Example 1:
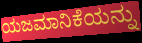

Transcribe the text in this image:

ಯಜಮಾನಿಕೆಯನ್ನು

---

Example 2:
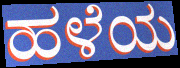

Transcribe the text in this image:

ಹಳೆಯ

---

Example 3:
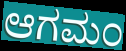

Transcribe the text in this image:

ಆಗಮಂ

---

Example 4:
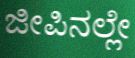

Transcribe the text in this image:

ಜೀಪಿನಲ್ಲೇ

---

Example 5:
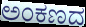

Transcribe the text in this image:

ಅಂಕಣದ